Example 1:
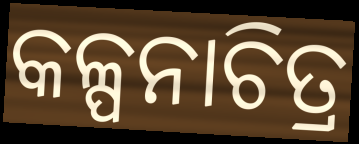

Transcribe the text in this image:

କଳ୍ପନାଚିତ୍ର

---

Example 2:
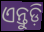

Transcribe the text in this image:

ଏନ୍ତୁଡ଼ି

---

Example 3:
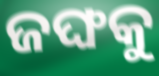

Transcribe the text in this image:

ଜଙ୍ଘକୁ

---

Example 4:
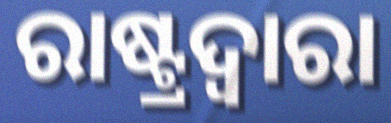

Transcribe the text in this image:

ରାଷ୍ଟ୍ରଦ୍ଵାରା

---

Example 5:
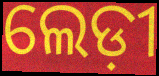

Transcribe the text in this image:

ଲେଡ଼ୀ